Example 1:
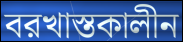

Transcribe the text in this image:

বরখাস্তকালীন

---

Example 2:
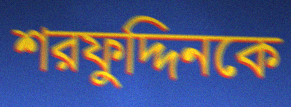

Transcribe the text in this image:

শরফুদ্দিনকে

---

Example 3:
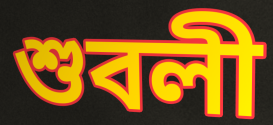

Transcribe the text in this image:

শুবলী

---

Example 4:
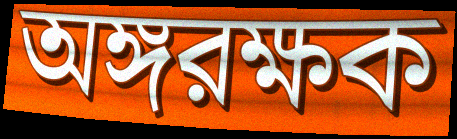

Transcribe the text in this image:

অঙ্গরক্ষক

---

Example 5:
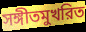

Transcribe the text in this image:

সঙ্গীতমুখরিত